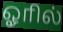
ஓரில்